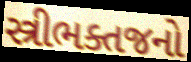
સ્ત્રીભક્તજનો